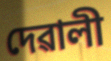
দেৱালী